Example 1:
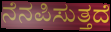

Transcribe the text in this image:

ನೆನಪಿಸುತ್ತದೆ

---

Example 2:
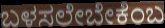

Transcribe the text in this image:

ಬಳಸಲೇಬೇಕೆಂಬ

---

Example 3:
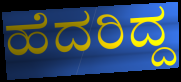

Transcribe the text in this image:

ಹೆದರಿದ್ದ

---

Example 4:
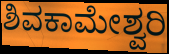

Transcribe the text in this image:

ಶಿವಕಾಮೇಶ್ವರಿ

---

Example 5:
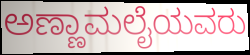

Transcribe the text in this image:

ಅಣ್ಣಾಮಲೈಯವರು